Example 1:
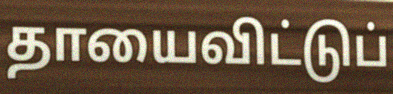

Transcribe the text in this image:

தாயைவிட்டுப்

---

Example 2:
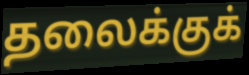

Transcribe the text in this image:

தலைக்குக்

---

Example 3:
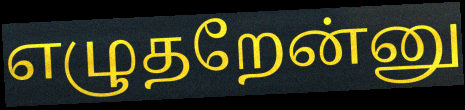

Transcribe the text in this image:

எழுதறேன்னு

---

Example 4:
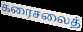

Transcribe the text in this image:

கரைசலைத்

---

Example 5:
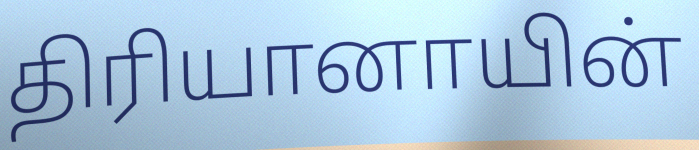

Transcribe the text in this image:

திரியானாயின்